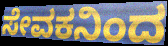
ಸೇವಕನಿಂದ